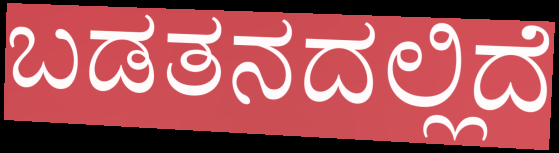
ಬಡತನದಲ್ಲಿದೆ